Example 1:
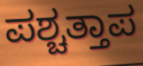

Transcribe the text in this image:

ಪಶ್ಚತ್ತಾಪ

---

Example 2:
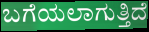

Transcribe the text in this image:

ಬಗೆಯಲಾಗುತ್ತಿದೆ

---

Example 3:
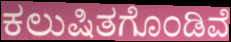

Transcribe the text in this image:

ಕಲುಷಿತಗೊಂಡಿವೆ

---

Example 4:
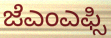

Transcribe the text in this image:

ಜೆಎಂಎಫ್ಸಿ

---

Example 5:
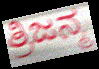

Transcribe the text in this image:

ತ್ರಿಜನ್ಮ